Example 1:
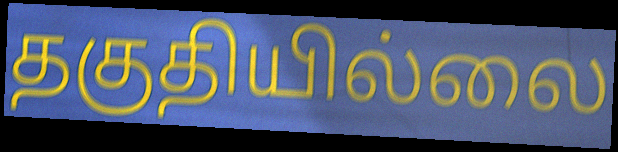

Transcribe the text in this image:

தகுதியில்லை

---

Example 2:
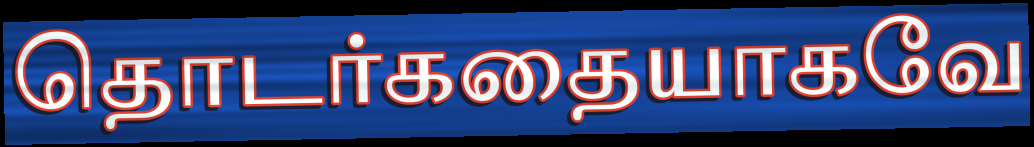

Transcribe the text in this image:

தொடர்கதையாகவே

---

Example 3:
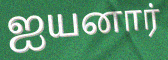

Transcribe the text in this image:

ஐயனார்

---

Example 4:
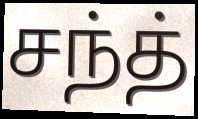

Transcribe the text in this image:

சந்த்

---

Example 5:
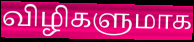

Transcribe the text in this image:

விழிகளுமாக